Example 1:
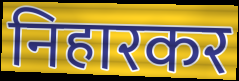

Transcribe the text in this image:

निहारकर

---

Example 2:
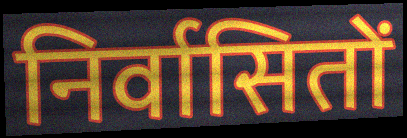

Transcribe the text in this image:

निर्वासितों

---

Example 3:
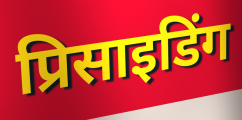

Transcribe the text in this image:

प्रिसाइडिंग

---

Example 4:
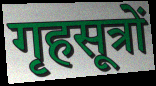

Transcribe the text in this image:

गृहसूत्रों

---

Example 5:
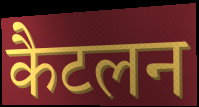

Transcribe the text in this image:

कैटलन